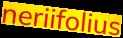
neriifolius